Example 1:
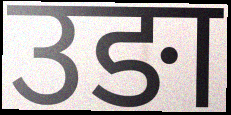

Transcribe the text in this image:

उङा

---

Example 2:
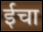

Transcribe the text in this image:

ईचा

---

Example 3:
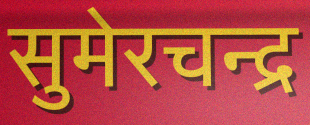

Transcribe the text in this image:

सुमेरचन्द्र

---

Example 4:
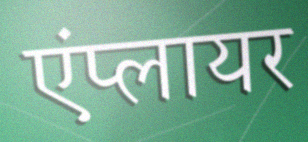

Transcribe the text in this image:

एंप्लायर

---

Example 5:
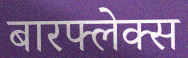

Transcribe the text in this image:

बारफ्लेक्स